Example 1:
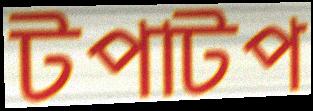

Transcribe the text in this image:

টপাটপ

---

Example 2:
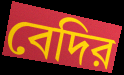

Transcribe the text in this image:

বেদির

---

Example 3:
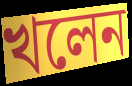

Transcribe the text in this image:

খলেন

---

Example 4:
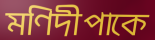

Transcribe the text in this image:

মণিদীপাকে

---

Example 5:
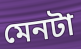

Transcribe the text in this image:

মেনটা